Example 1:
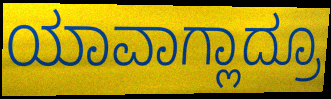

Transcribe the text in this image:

ಯಾವಾಗ್ಲಾದ್ರೂ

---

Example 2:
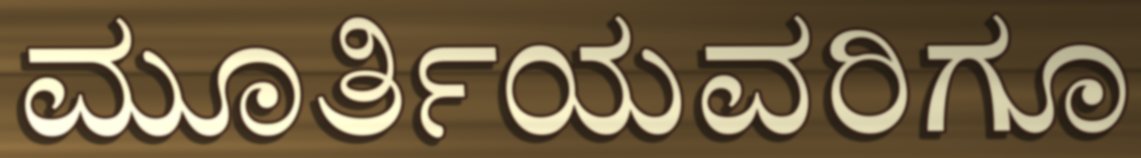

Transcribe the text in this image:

ಮೂರ್ತಿಯವರಿಗೂ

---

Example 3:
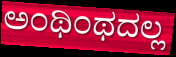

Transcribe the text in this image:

ಅಂಥಿಂಥದಲ್ಲ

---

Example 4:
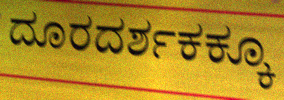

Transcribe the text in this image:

ದೂರದರ್ಶಕಕ್ಕೂ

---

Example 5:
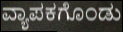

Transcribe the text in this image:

ವ್ಯಾಪಕಗೊಂಡು